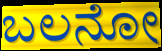
ಬಲನೋ